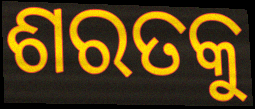
ଶରତକୁ